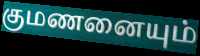
குமணனையும்